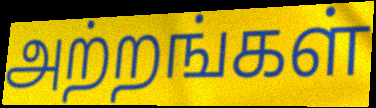
அற்றங்கள்